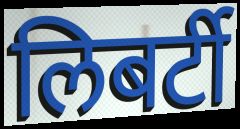
लिबर्टी